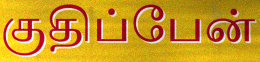
குதிப்பேன்